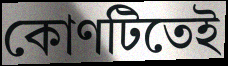
কোণটিতেই